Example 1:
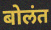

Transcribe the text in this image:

बोलंत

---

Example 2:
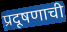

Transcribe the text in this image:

प्रदूषणाची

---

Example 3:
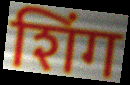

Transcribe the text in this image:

शिंग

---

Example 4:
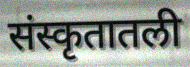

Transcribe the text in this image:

संस्कृतातली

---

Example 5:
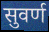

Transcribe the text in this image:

सुवर्ण